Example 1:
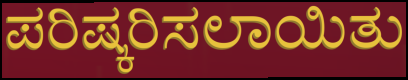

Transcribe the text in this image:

ಪರಿಷ್ಕರಿಸಲಾಯಿತು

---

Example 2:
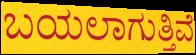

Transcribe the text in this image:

ಬಯಲಾಗುತ್ತಿವೆ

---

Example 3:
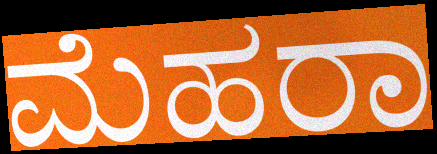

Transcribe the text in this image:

ಮೆಹರಾ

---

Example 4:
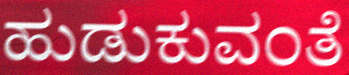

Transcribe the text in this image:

ಹುಡುಕುವಂತೆ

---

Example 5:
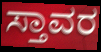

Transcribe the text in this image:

ಸ್ತಾವರ